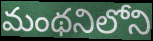
మంథనిలోని